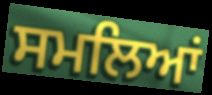
ਸਮਲਿਆਂ